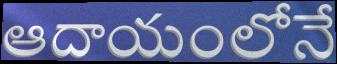
ఆదాయంలోనే